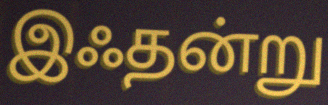
இஃதன்று